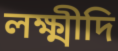
লক্ষ্মীদি